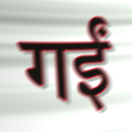
गईं